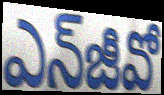
ఎన్‌జీవో